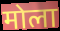
मोला